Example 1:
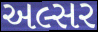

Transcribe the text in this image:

અલ્સર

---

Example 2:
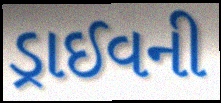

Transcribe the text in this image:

ડ્રાઈવની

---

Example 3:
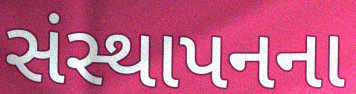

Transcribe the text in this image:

સંસ્થાપનના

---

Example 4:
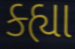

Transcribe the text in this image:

ક્હ્યા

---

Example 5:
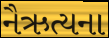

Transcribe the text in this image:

નૈઋત્યના